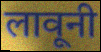
लावूनी